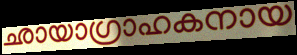
ഛായാഗ്രാഹകനായ